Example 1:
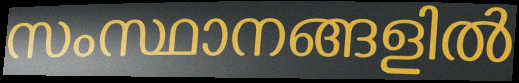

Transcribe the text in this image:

സംസ്ഥാനങ്ങളിൽ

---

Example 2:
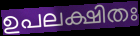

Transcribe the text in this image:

ഉപലക്ഷിതഃ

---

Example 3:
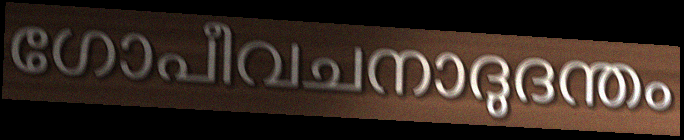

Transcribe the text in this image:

ഗോപീവചനാദുദന്തം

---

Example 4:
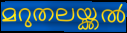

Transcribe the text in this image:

മറുതലയ്ക്കൽ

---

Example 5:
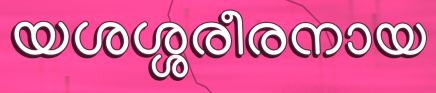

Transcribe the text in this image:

യശശ്ശരീരനായ